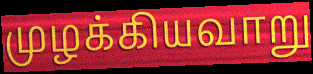
முழக்கியவாறு